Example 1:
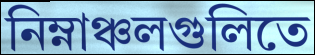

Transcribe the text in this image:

নিম্নাঞ্চলগুলিতে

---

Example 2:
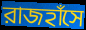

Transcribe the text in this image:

রাজহাঁসে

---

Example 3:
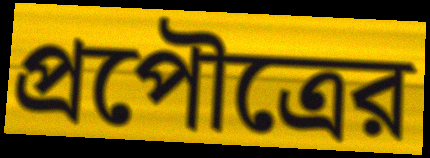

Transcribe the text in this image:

প্রপৌত্রের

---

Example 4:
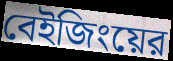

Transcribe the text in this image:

বেইজিংয়ের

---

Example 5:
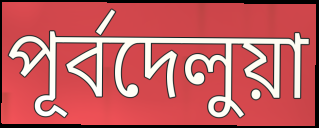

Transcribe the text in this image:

পূর্বদেলুয়া